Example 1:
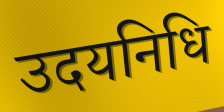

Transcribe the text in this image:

उदयनिधि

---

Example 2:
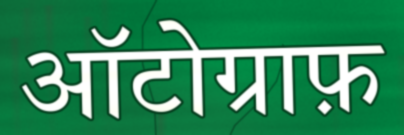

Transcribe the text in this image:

ऑटोग्राफ़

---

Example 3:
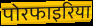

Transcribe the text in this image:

पोरफाइरिया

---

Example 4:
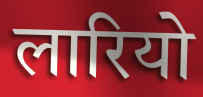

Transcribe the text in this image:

लारियो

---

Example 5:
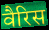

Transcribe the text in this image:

वैरिस